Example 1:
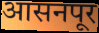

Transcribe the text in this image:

आसनपूर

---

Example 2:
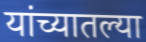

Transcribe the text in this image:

यांच्यातल्या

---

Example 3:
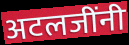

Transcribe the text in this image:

अटलजींनी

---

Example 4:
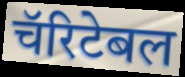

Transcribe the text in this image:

चॅरिटेबल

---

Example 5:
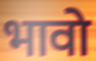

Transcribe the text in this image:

भावो